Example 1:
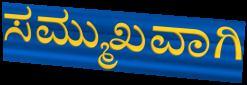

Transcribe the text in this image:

ಸಮ್ಮುಖವಾಗಿ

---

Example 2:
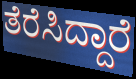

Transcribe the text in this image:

ತೆರೆಸಿದ್ದಾರೆ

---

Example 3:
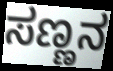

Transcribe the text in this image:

ಸಣ್ಣನ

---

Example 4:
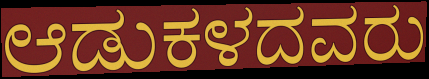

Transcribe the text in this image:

ಆಡುಕಳದವರು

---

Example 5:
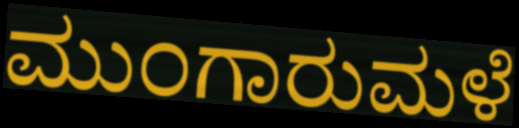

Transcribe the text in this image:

ಮುಂಗಾರುಮಳೆ